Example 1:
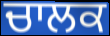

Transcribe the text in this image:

ਚਾਲਕ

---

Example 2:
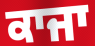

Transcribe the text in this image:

ਕਾਜਾ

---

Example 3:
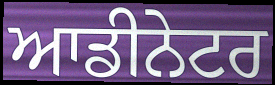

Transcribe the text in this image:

ਆਡੀਨੇਟਰ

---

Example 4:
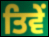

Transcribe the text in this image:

ਤਿਵੇਂ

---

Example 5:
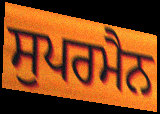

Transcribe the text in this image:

ਸੁਪਰਮੈਨ